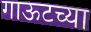
गाऊटच्या